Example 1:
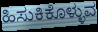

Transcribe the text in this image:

ಹಿಸುಕಿಕೊಳ್ಳುವ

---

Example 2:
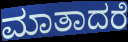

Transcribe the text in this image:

ಮಾತಾದರೆ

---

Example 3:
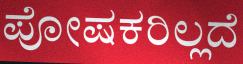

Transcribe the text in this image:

ಪೋಷಕರಿಲ್ಲದೆ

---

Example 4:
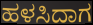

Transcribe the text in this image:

ಹಳಸಿದಾಗ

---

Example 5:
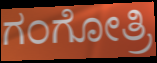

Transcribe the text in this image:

ಗಂಗೋತ್ರಿ